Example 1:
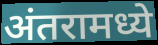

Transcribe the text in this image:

अंतरामध्ये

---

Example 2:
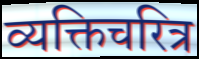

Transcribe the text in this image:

व्यक्तिचरित्र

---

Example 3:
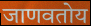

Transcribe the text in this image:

जाणवतोय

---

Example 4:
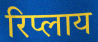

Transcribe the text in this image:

रिप्लाय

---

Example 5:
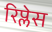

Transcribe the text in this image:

रिप्लेस